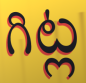
గిట్ల